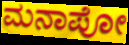
ಮನಾಪೋ